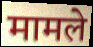
मामले